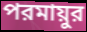
পরমায়ুর